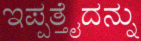
ಇಪ್ಪತ್ತೈದನ್ನು